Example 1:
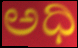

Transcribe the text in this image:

ಅಧಿ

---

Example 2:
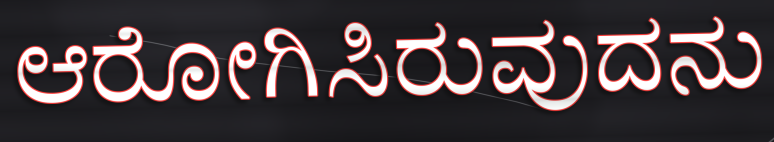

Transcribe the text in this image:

ಆರೋಗಿಸಿರುವುದನು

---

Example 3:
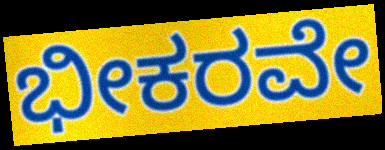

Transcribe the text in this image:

ಭೀಕರವೇ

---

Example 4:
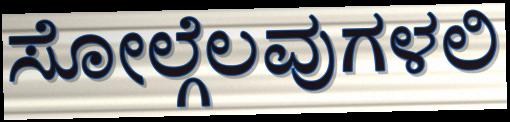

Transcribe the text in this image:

ಸೋಲ್ಗೆಲವುಗಳಲಿ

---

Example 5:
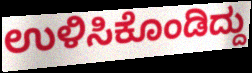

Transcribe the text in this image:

ಉಳಿಸಿಕೊಂಡಿದ್ದು